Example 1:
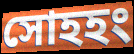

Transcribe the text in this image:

সোহহং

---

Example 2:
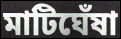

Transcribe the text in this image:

মাটিঘেঁষা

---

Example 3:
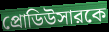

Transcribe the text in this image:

প্রোডিউসারকে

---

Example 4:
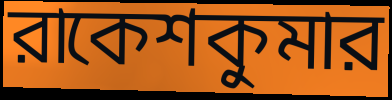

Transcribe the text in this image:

রাকেশকুমার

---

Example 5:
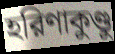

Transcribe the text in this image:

হরিণাকুণ্ডু